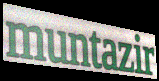
muntazir